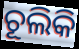
ଚୂଲିକି